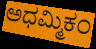
ಅಧಮ್ಮಿಕಂ